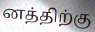
னத்திற்கு